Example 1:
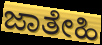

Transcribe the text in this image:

ಜಾತೇಹಿ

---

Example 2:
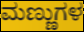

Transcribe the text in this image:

ಮಣ್ಣುಗಳ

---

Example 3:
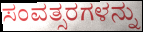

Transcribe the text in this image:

ಸಂವತ್ಸರಗಳನ್ನು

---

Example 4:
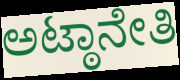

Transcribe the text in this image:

ಅಟ್ಠಾನೇತಿ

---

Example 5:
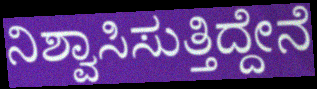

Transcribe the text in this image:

ನಿಶ್ವಾಸಿಸುತ್ತಿದ್ದೇನೆ